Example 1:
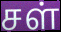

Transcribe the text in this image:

சள்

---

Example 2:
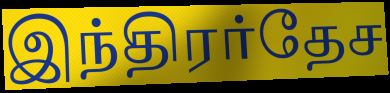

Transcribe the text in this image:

இந்திரர்தேச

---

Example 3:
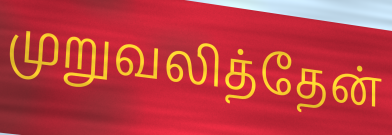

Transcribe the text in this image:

முறுவலித்தேன்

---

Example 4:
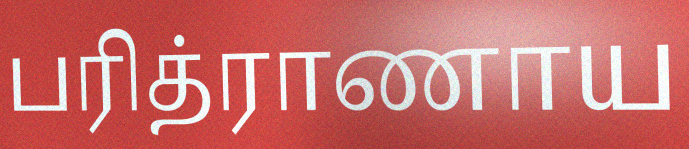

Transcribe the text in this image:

பரித்ராணாய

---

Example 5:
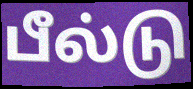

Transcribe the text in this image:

பீல்டு